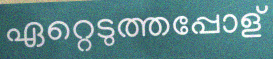
ഏറ്റെടുത്തപ്പോള്